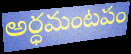
అర్ధమంటపం